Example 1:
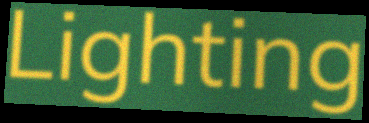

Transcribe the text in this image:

Lighting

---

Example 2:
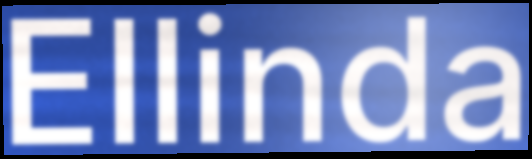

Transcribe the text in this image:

Ellinda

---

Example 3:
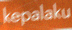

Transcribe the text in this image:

kepalaku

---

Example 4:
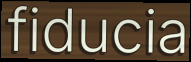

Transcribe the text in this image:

fiducia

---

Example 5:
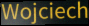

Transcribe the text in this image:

Wojciech